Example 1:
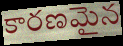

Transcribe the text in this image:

కారణమైన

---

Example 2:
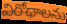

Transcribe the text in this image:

విరోధాలను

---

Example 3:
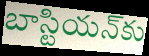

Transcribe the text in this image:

బాస్టియన్‌కు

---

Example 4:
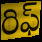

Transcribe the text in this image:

రిఫ్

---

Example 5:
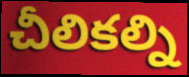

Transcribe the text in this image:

చీలికల్ని